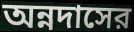
অন্নদাসের